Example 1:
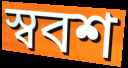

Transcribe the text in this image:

স্ববশ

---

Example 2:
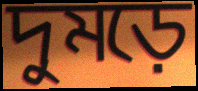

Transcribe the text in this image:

দুমড়ে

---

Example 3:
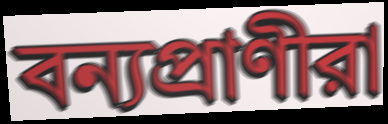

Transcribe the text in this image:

বন্যপ্রাণীরা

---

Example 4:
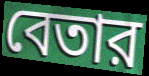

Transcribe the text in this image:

বেতার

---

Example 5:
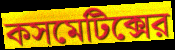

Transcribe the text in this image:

কসমেটিক্সের